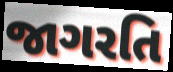
જાગરતિ